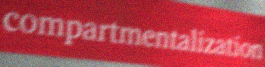
compartmentalization